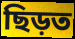
ছিড়ত